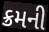
ક્રમની